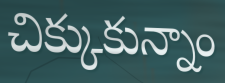
చిక్కుకున్నాం